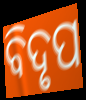
ବିଦୃପ